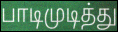
பாடிமுடித்து